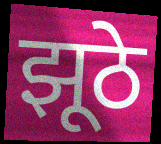
झूठे